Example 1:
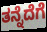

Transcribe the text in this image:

ತನ್ನೆದೆಗೆ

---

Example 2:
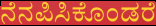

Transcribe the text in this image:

ನೆನಪಿಸಿಕೊಂಡರೆ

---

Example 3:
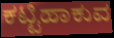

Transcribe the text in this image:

ಕಟ್ಟಿಹಾಕುವ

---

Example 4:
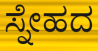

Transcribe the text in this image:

ಸ್ನೇಹದ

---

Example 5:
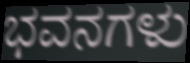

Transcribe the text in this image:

ಭವನಗಳು